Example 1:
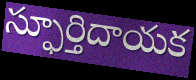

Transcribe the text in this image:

స్ఫూర్తిదాయక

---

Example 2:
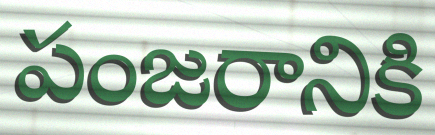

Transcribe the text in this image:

పంజరానికి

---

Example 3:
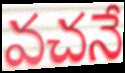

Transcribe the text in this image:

వచనే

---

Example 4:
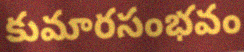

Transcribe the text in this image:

కుమారసంభవం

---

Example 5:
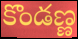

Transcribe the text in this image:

కొండణ్ణ